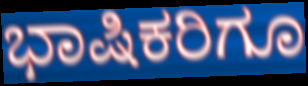
ಭಾಷಿಕರಿಗೂ